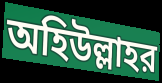
অহিউল্লাহর